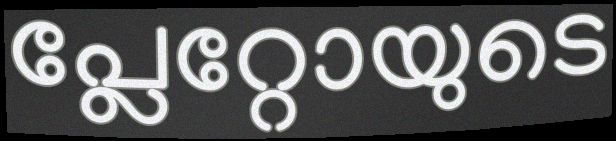
പ്ലേറ്റോയുടെ